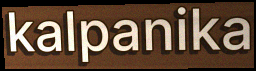
kalpanika